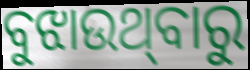
ବୁଝାଉଥ୍‌ବାରୁ